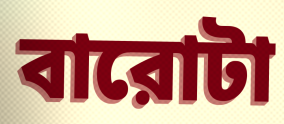
বারোটা